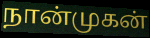
நான்முகன்